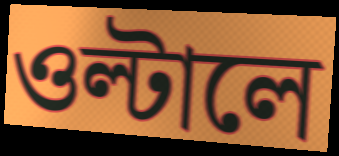
ওল্টালে